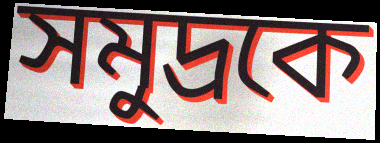
সমুদ্রকে